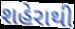
શહેરાથી